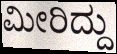
ಮೀರಿದ್ದು